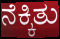
ನೆಕ್ಕಿತು